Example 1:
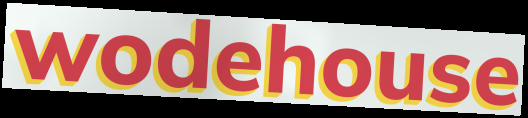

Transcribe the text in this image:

wodehouse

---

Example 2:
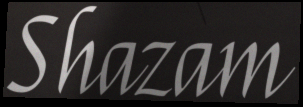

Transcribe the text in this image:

Shazam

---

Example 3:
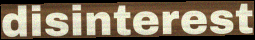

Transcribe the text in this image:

disinterest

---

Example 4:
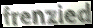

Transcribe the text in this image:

frenzied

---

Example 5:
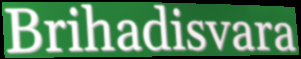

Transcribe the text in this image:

Brihadisvara